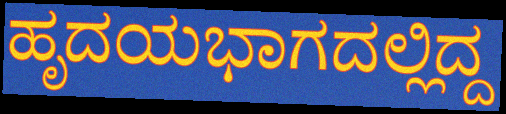
ಹೃದಯಭಾಗದಲ್ಲಿದ್ದ